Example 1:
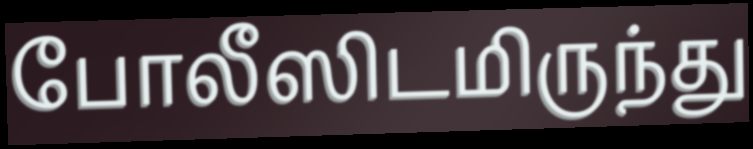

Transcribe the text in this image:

போலீஸிடமிருந்து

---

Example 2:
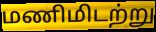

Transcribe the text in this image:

மணிமிடற்று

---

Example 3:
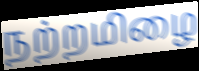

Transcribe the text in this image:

நற்றமிழை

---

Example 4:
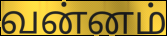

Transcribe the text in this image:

வன்னம்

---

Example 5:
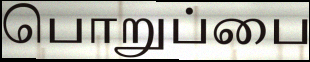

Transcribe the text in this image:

பொறுப்பை